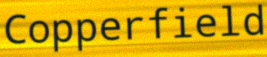
Copperfield